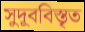
সুদূববিস্তৃত